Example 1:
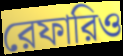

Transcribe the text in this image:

রেফারিও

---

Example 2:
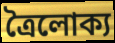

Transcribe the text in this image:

ত্রৈলোক্য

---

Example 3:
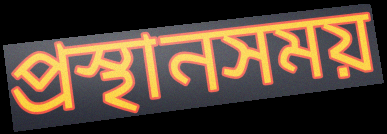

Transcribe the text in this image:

প্রস্থানসময়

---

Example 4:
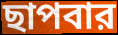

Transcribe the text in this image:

ছাপবার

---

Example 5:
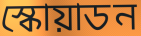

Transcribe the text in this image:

স্কোয়াডন